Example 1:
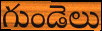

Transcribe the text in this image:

గుండెలు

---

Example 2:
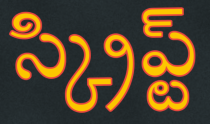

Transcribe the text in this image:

స్క్రిప్ట్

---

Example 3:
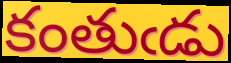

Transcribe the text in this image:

కంతుఁడు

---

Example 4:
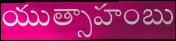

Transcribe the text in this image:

యుత్సాహంబు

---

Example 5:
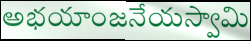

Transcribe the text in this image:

అభయాంజనేయస్వామి